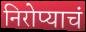
निरोप्याचं